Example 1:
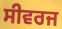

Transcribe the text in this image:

ਸੀਵਰਜ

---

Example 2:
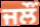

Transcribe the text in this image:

ਜਲੌਂ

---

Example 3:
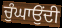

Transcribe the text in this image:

ਚੁੰਘਾਉਂਦੀ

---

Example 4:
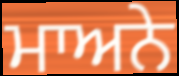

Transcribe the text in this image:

ਮਾਅਨੇ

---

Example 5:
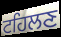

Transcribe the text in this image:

ਟਹਿਲਣ